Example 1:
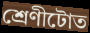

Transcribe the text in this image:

শ্ৰেণীটোত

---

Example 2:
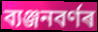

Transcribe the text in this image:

ব্যঞ্জনবৰ্ণৰ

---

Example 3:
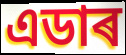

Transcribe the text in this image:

এডাৰ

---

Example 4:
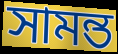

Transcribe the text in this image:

সামন্ত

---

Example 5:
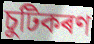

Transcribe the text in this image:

চুটিকৰণ